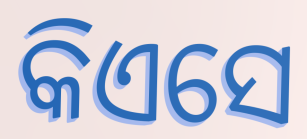
କିଏସେ